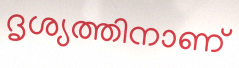
ദൃശ്യത്തിനാണ്